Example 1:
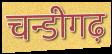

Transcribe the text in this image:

चन्डीगढ़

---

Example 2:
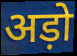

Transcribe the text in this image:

अड़ो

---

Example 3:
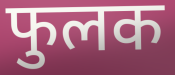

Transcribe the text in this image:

फुलक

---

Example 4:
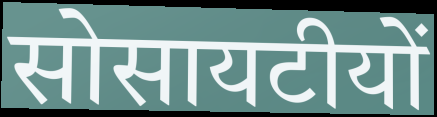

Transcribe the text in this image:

सोसायटीयों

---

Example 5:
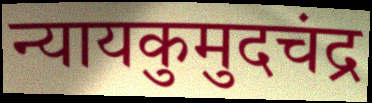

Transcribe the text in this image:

न्यायकुमुदचंद्र